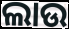
ଲାଉ